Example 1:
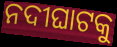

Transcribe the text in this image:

ନଦୀଘାଟକୁ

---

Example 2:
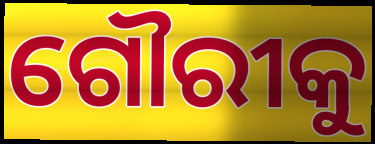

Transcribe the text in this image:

ଗୌରୀକୁ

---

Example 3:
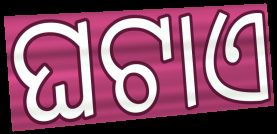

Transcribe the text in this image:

ଘଟାଏ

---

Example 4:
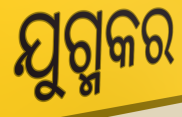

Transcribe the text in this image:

ଯୁଗ୍ମକର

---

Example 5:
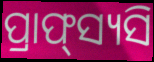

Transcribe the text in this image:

ପ୍ରାଫ୍‌ସ୍ୟସି